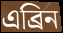
এব্ৰিন